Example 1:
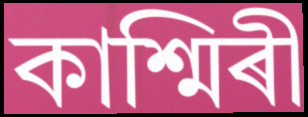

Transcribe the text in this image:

কাশ্মিৰী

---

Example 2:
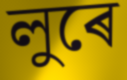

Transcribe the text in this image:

লুৰে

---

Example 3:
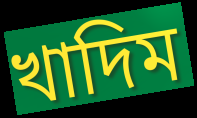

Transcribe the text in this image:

খাদিম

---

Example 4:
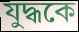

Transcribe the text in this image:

যুদ্ধকে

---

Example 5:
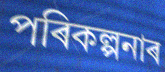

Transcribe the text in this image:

পৰিকল্পনাৰ